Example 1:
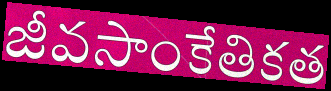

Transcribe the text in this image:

జీవసాంకేతికత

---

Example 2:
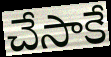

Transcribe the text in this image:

చేసాకే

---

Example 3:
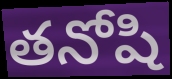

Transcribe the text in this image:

తనోషి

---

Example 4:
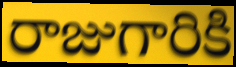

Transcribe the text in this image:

రాజుగారికి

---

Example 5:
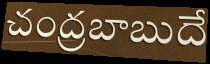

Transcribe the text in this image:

చంద్రబాబుదే